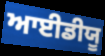
ਆਈਡੀਯੂ